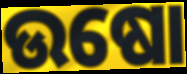
ଉଷୋ